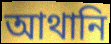
আথানি